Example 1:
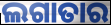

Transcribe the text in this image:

ଲଗାତାର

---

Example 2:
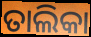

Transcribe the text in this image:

ତାଲିକା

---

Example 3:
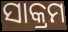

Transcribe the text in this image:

ସାକ୍ରମ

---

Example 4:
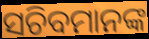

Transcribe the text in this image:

ସଚିବମାନଙ୍କ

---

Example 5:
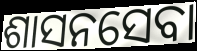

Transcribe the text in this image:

ଶାସନସେବା